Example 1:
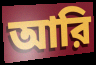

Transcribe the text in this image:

আরি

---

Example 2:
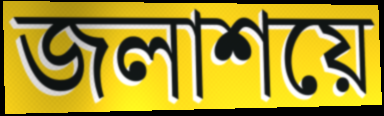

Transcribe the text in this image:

জলাশয়ে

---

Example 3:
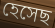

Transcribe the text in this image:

হেসেছ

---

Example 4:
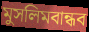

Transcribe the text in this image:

মুসলিমবান্ধব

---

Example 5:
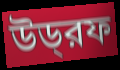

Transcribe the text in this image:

উড্‌রফ